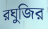
রঘুজির